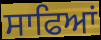
ਸਾਫਿਆਂ